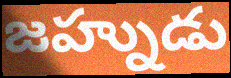
జహ్నుడు